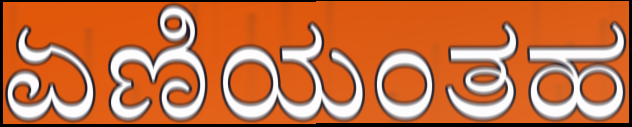
ಏಣಿಯಂತಹ